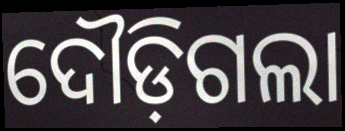
ଦୌଡ଼ିଗଲା